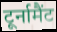
टूर्नामैंट